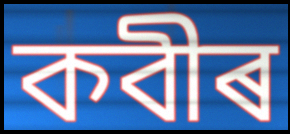
কবীৰ